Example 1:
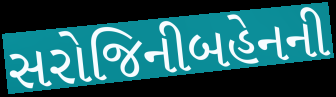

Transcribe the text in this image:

સરોજિનીબહેનની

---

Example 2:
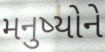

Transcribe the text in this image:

મનુષ્યોને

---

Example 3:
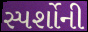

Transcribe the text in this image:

સ્પર્શોની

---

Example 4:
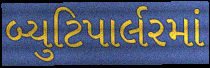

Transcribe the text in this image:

બ્યુટિપાર્લરમાં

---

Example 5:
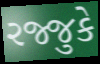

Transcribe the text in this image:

રજ્જુકે